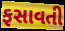
ફસાવતી